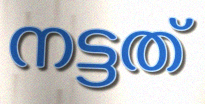
നട്ടത്